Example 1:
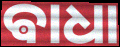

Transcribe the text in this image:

ଵାଧା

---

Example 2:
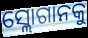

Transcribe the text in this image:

ସ୍ଲୋଗାନକୁ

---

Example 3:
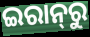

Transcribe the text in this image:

ଇରାନ୍‌ରୁ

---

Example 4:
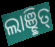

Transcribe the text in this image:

ଲାଞ୍ଛିତ୍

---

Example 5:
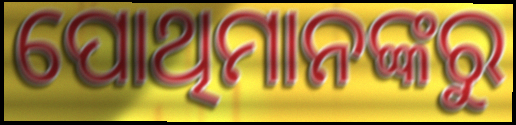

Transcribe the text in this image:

ପୋଥିମାନଙ୍କରୁ